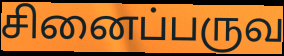
சினைப்பருவ